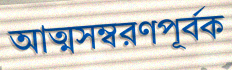
আত্মসম্বরণপূর্বক